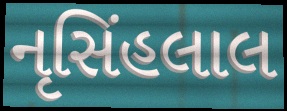
નૃસિંહલાલ